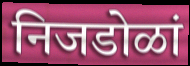
निजडोळां